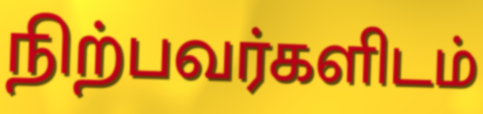
நிற்பவர்களிடம்